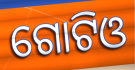
ଗୋଟିଓ